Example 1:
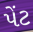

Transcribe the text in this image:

પેંટ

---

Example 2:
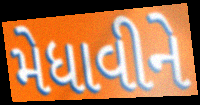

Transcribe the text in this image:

મેધાવીને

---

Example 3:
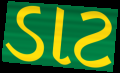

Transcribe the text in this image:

ડાટ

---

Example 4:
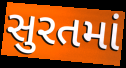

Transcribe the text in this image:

સુરતમાં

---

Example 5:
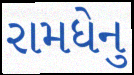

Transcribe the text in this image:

રામધેનુ